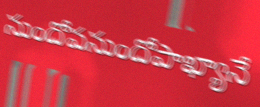
సుందోపసుందోపాఖ్యానే